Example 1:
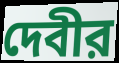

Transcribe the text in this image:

দেবীর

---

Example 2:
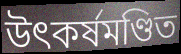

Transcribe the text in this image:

উৎকর্ষমণ্ডিত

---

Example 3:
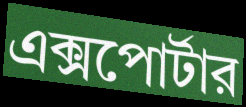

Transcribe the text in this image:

এক্সপোর্টার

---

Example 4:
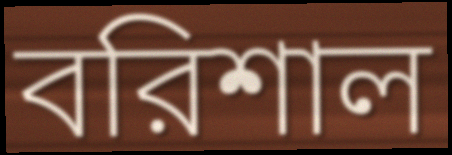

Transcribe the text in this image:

বরিশাল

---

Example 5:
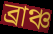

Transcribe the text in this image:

ব্রাঞ্চ